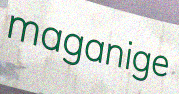
maganige